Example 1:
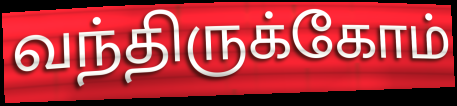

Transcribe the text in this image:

வந்திருக்கோம்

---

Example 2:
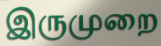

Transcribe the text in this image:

இருமுறை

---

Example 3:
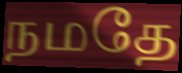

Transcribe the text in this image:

நமதே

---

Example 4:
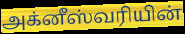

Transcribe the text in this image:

அக்னீஸ்வரியின்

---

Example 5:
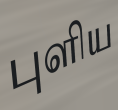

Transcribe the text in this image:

புளிய